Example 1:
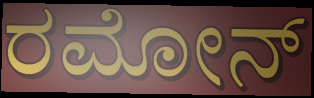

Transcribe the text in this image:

ರಮೋನ್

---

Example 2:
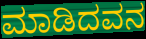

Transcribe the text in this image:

ಮಾಡಿದವನ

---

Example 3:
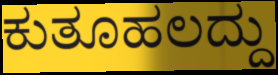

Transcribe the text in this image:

ಕುತೂಹಲದ್ದು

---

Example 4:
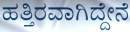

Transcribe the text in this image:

ಹತ್ತಿರವಾಗಿದ್ದೇನೆ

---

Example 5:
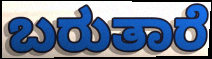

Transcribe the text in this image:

ಬರುತಾರೆ